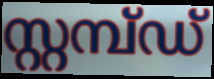
സ്റ്റമ്പ്ഡ്